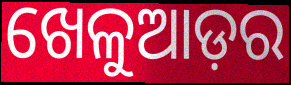
ଖେଳୁଆଡ଼ର